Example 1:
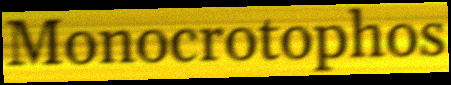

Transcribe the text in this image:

Monocrotophos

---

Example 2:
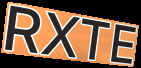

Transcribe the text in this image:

RXTE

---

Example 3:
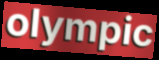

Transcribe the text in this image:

olympic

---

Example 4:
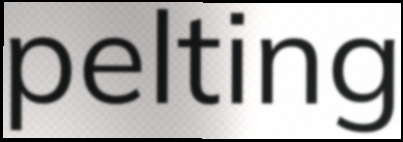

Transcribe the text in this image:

pelting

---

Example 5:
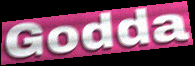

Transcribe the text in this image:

Godda